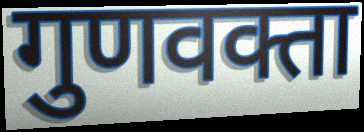
गुणवक्ता